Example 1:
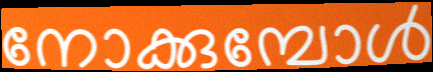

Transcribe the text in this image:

നോക്കുമ്പോൾ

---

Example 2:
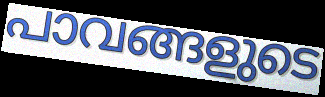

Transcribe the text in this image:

പാവങ്ങളുടെ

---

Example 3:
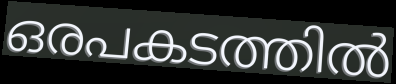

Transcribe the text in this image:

ഒരപകടത്തിൽ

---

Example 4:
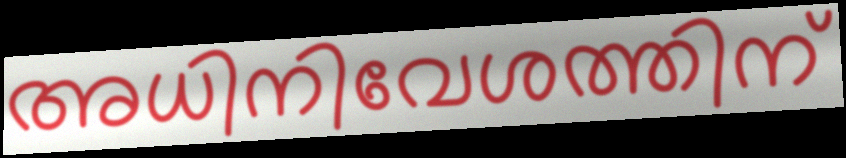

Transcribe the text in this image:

അധിനിവേശത്തിന്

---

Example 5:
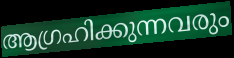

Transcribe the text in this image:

ആഗ്രഹിക്കുന്നവരും